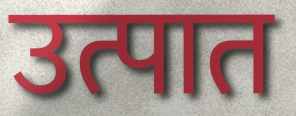
उत्पात